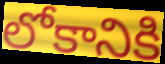
లోకానికి